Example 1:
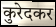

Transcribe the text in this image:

कुरेदकर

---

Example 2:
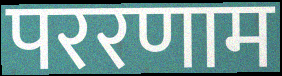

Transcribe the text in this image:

पररणाम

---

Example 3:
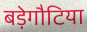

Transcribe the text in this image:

बड़ेगौटिया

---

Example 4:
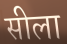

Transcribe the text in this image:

सीला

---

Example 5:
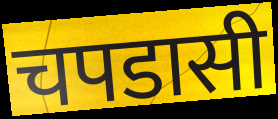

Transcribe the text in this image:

चपडासी